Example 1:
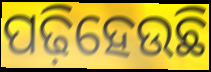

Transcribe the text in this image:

ପଢ଼ିହେଉଛି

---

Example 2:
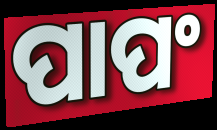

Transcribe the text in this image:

ପାପଂ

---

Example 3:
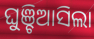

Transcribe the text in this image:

ଘୁଞ୍ଚିଆସିଲା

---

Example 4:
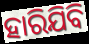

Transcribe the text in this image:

ହାରିଯିବି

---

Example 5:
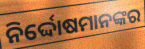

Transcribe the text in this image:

ନିର୍ଦ୍ଦୋଷମାନଙ୍କର